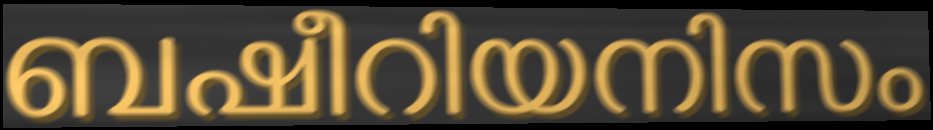
ബഷീറിയനിസം